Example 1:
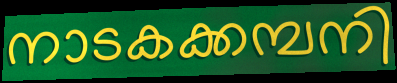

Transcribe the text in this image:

നാടകക്കമ്പനി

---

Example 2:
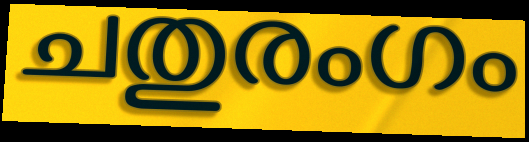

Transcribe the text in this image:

ചതുരംഗം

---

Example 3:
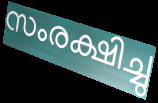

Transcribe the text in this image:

സംരക്ഷിച്ചു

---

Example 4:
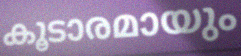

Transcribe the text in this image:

കൂടാരമായും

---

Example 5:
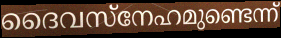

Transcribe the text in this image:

ദൈവസ്നേഹമുണ്ടെന്ന്